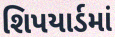
શિપયાર્ડમાં